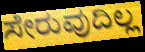
ಸೇರುವುದಿಲ್ಲ